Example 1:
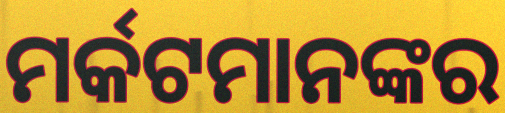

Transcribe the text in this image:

ମର୍କଟମାନଙ୍କର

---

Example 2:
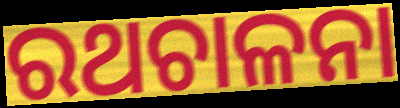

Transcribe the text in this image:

ରଥଚାଳନା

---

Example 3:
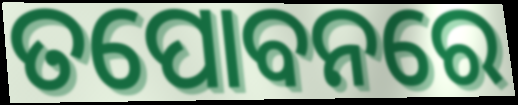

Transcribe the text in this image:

ତପୋବନରେ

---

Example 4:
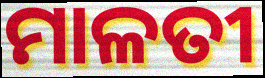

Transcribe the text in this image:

ମାଳତୀ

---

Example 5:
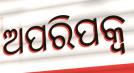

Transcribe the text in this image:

ଅପରିପକ୍ୱ